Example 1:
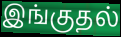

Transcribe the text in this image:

இங்குதல்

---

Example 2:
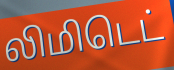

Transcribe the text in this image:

லிமிடெட்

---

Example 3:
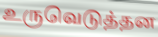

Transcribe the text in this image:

உருவெடுத்தன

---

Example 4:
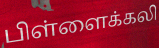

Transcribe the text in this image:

பிள்ளைக்கலி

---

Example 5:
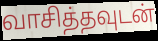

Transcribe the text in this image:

வாசித்தவுடன்